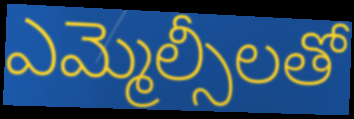
ఎమ్మెల్సీలతో